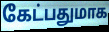
கேட்பதுமாக